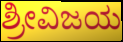
ಶ್ರೀವಿಜಯ